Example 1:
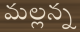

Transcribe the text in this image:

మల్లన్న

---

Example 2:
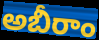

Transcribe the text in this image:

అబీరాం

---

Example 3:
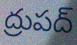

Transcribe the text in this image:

ద్రుపద్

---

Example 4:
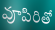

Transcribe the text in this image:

వూపిరితో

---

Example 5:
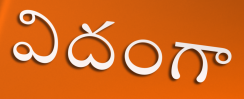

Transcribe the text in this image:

విదంగా